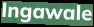
Ingawale